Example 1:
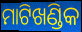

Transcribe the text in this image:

ମାଟିଖଣ୍ଡିକ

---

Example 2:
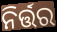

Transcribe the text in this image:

ନିର୍ତ୍ତର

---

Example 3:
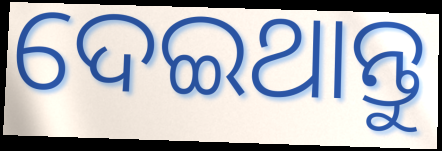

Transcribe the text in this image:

ଦେଇଥାନ୍ତୁ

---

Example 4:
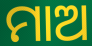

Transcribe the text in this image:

ମାଅ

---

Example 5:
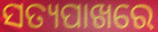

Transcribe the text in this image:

ସତ୍ୟପାଖରେ